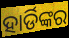
ହାର୍ଡିଙ୍କର